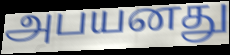
அபயனது